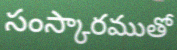
సంస్కారముతో